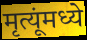
मृत्यूंमध्ये